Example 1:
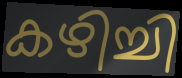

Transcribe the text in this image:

കഴിച്ചി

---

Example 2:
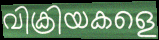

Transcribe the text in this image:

വിക്രിയകളെ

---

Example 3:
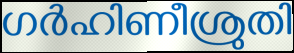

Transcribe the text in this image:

ഗർഹിണീശ്രുതി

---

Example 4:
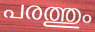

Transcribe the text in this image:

പരത്തും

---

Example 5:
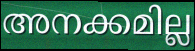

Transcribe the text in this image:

അനക്കമില്ല